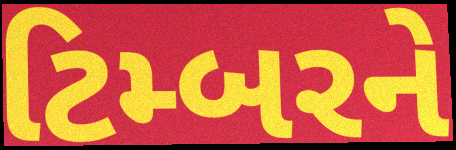
ટિમ્બરને